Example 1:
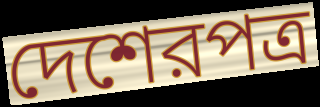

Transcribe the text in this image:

দেশেরপত্র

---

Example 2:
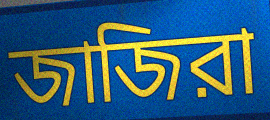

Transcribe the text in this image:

জাজিরা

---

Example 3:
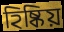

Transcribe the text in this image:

হিষ্কিয়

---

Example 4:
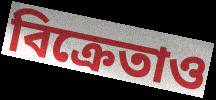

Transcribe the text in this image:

বিক্রেতাও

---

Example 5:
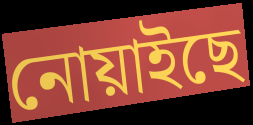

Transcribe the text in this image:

নোয়াইছে